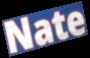
Nate